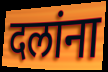
दलांना